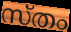
സ്തം